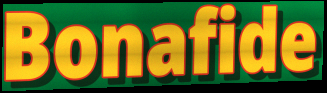
Bonafide